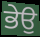
ਭੇਉ